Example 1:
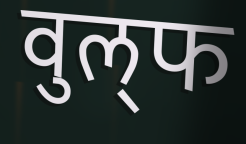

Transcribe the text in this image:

वुल्फ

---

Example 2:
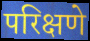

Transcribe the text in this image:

परिक्षणे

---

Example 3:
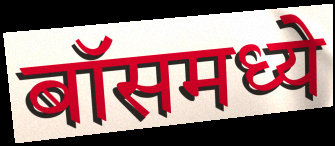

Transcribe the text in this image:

बॉसमध्ये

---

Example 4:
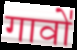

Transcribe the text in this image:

गावो॑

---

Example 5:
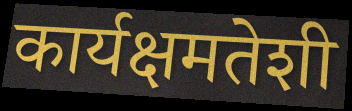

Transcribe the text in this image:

कार्यक्षमतेशी